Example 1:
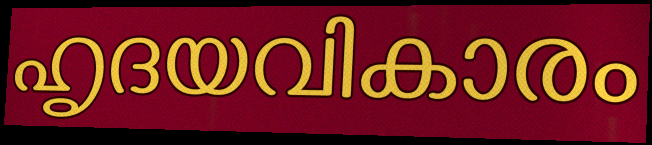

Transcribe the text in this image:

ഹൃദയവികാരം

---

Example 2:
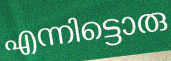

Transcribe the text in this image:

എന്നിട്ടൊരു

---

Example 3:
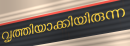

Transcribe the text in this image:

വൃത്തിയാക്കിയിരുന്ന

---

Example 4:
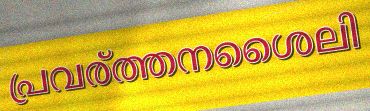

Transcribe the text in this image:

പ്രവര്ത്തനശൈലി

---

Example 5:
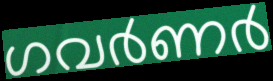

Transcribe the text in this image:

ഗവർണർ